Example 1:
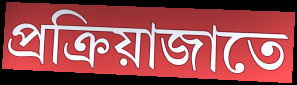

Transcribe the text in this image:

প্রক্রিয়াজাতে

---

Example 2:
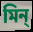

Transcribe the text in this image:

মিন্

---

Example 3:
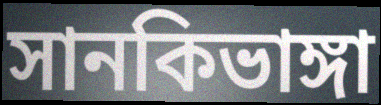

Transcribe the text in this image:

সানকিভাঙ্গা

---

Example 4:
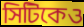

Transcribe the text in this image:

সিটিকেও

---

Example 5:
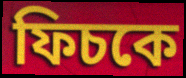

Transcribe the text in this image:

ফিচকে